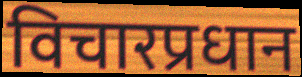
विचारप्रधान